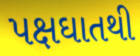
પક્ષઘાતથી